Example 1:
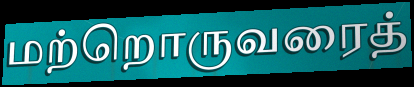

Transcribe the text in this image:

மற்றொருவரைத்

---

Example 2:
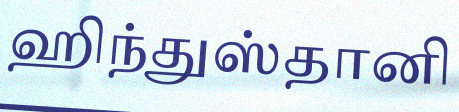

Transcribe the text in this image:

ஹிந்துஸ்தானி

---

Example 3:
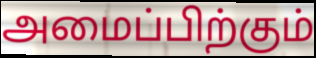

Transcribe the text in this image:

அமைப்பிற்கும்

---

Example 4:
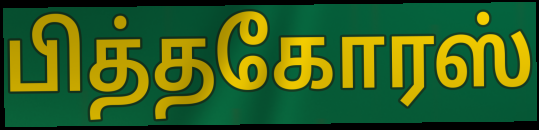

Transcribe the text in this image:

பித்தகோரஸ்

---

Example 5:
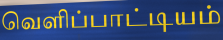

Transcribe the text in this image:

வெளிப்பாட்டியம்